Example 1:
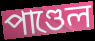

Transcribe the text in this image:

পাণ্ডেল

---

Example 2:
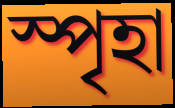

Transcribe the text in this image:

স্পৃহা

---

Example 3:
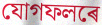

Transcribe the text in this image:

যোগফলৰে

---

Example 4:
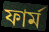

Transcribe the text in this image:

ফাৰ্ম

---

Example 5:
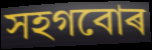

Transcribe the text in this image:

সহগবোৰ